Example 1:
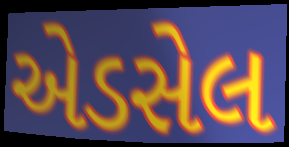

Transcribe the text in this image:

એડસેલ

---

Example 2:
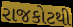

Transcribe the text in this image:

રાજકોટથી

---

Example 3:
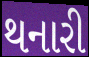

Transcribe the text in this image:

થનારી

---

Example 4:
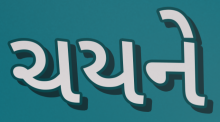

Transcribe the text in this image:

ચયને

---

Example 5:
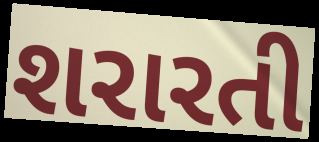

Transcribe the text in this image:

શરારતી